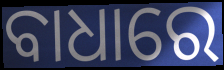
ବାଧାରେ